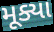
મૂક્યા